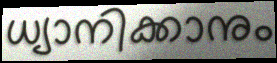
ധ്യാനിക്കാനും